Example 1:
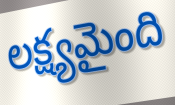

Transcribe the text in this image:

లక్ష్యమైంది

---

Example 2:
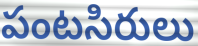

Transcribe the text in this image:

పంటసిరులు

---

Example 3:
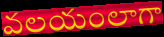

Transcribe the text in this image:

వలయంలాగా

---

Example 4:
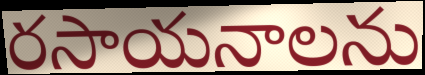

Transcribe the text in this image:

రసాయనాలను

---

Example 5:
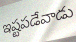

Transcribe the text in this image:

ఇష్టపడేవాడు